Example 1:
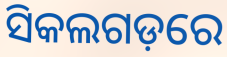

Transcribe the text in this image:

ସିକଲଗଡ଼ରେ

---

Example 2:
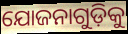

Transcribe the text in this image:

ଯୋଜନାଗୁଡ଼ିକୁ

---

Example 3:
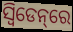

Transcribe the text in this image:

ସ୍ୱିଡେନ୍‌ରେ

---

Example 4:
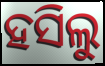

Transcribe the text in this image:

ହସିଲୁ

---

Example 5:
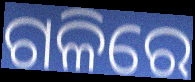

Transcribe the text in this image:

ଗଳିରେ